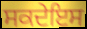
ਸਕਦੇਇਸ